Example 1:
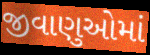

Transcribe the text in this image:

જીવાણુઓમાં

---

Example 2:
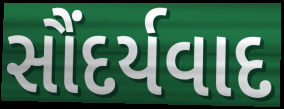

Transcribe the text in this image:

સૌંદર્યવાદ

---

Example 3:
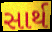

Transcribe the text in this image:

સાર્થ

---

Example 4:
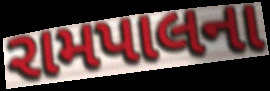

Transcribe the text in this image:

રામપાલના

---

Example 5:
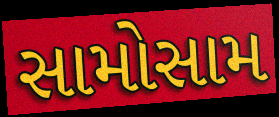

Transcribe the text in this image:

સામોસામ